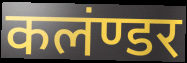
कलंण्डर